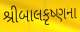
શ્રીબાલકૃષ્ણના